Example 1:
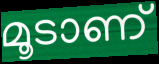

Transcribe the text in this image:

മൂടാണ്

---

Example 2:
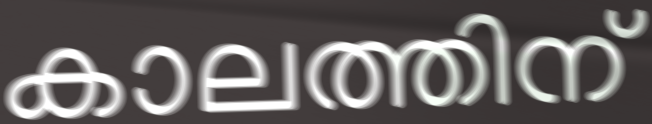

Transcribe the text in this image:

കാലത്തിന്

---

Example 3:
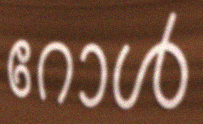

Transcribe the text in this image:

റോൾ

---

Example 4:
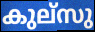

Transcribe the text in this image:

കുല്സു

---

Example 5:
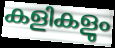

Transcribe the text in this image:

കളികളും